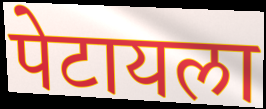
पेटायला